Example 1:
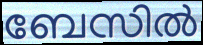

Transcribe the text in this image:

ബേസിൽ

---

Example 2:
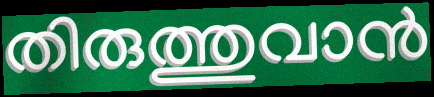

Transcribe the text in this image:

തിരുത്തുവാൻ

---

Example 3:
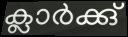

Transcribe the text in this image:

ക്ലാർക്കു്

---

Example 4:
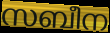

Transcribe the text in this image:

സബീന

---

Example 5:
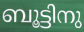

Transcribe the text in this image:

ബൂട്ടിനു